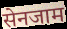
सेनजाम